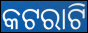
କଟରାଟି